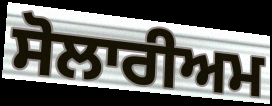
ਸੋਲਾਰੀਅਮ